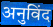
अनुविंद